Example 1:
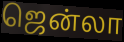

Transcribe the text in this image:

ஜென்லா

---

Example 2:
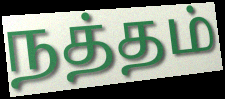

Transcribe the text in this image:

நத்தம்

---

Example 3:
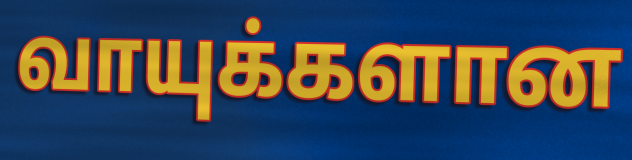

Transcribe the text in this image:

வாயுக்களான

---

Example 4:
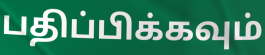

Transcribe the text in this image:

பதிப்பிக்கவும்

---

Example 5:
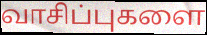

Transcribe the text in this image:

வாசிப்புகளை